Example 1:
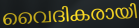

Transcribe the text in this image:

വൈദികരായി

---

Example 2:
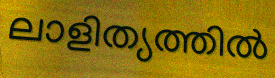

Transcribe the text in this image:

ലാളിത്യത്തിൽ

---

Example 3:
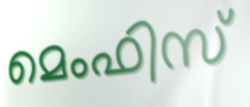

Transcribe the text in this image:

മെംഫിസ്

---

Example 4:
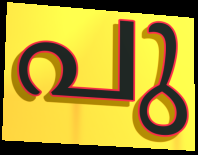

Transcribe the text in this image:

പു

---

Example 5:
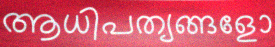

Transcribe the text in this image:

ആധിപത്യങ്ങളോ